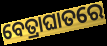
ବେତ୍ରାଘାତରେ